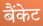
बैंकेट